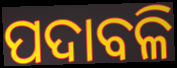
ପଦାବଳି